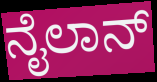
ನೈಲಾನ್